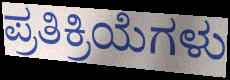
ಪ್ರತಿಕ್ರಿಯೆಗಳು